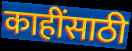
काहींसाठी